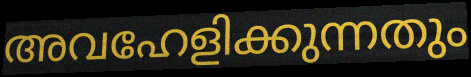
അവഹേളിക്കുന്നതും